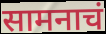
सामनाचं